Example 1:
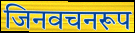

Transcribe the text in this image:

जिनवचनरूप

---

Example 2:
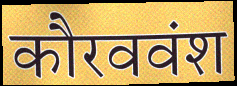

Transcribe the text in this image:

कौरववंश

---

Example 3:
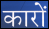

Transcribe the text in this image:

कारों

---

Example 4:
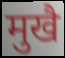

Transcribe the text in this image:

मुखै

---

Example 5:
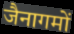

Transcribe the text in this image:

जैनागमों